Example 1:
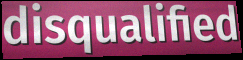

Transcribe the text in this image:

disqualified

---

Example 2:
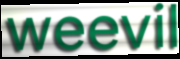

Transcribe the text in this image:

weevil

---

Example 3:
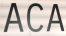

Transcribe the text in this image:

ACA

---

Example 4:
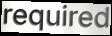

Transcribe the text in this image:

required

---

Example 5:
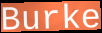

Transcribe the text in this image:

Burke